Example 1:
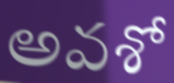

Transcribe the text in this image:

అవశో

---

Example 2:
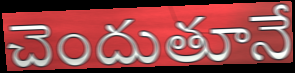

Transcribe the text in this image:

చెందుతూనే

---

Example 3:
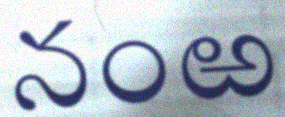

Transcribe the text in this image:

నంఱ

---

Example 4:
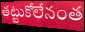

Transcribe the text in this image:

తట్టుకోలేనంత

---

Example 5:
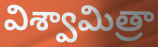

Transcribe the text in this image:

విశ్వామిత్రా